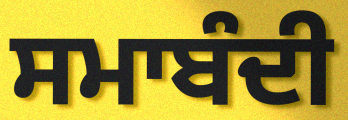
ਸਮਾਬੰਦੀ